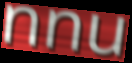
nnu